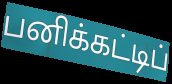
பனிக்கட்டிப்